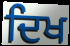
ਦਿਖ